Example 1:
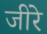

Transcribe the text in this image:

जीरे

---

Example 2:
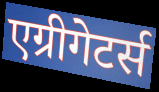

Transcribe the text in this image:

एग्रीगेटर्स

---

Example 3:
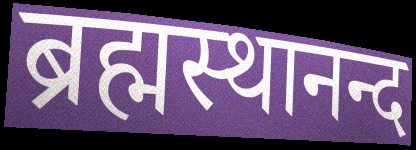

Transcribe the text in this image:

ब्रह्मस्थानन्द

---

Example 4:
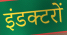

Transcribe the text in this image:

इंडक्टरों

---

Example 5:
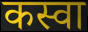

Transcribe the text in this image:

कस्वा